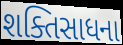
શક્તિસાધના